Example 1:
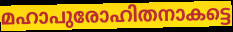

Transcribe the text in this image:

മഹാപുരോഹിതനാകട്ടെ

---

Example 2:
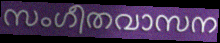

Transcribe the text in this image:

സംഗീതവാസന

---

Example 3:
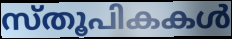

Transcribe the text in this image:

സ്തൂപികകൾ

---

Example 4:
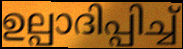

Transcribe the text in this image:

ഉല്പാദിപ്പിച്ച്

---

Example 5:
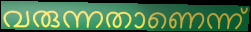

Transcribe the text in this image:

വരുന്നതാണെന്ന്